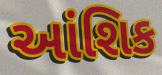
આંશિક